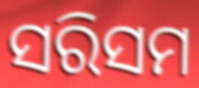
ସରିସମ